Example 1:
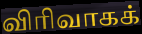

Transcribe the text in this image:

விரிவாகக்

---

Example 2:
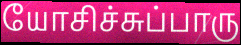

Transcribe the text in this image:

யோசிச்சுப்பாரு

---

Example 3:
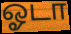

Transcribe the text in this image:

ஓடா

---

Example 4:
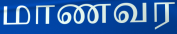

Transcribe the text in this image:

மாணவர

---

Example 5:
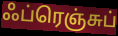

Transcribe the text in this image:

ஃப்ரெஞ்சுப்